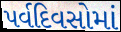
પર્વદિવસોમાં